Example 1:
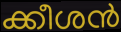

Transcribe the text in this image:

ക്കീശൻ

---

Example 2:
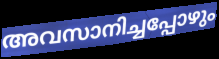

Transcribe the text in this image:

അവസാനിച്ചപ്പോഴും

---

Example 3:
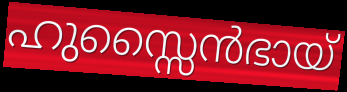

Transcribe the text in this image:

ഹുസ്സൈൻഭായ്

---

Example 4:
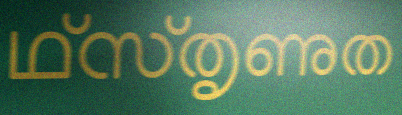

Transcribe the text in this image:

ഥ്സ്തൃണുത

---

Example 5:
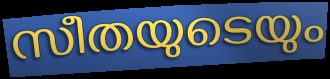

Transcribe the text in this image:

സീതയുടെയും